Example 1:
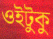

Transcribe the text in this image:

ওইটুকু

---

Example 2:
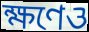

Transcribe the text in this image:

ক্ষণেও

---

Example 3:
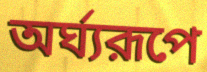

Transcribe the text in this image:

অর্ঘ্যরূপে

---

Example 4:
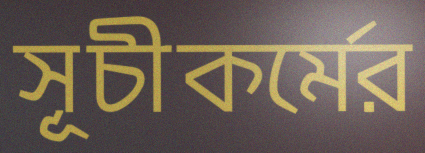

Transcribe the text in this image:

সূচীকর্মের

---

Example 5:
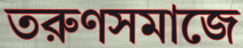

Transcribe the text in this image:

তরুণসমাজে